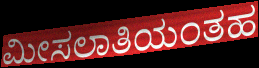
ಮೀಸಲಾತಿಯಂತಹ